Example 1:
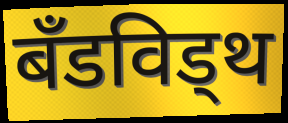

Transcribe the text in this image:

बँडविड्थ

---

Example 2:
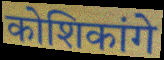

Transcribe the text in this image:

कोशिकांगे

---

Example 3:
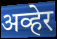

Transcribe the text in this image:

अव्हेर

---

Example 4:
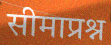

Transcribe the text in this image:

सीमाप्रश्न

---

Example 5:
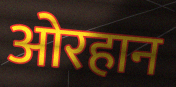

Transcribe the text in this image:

ओरहान